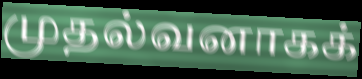
முதல்வனாகக்